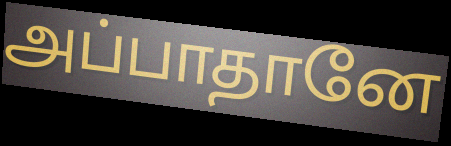
அப்பாதானே